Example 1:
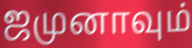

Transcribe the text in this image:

ஜமுனாவும்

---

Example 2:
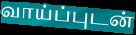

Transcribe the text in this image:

வாய்ப்புடன்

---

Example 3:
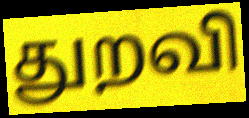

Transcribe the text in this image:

துறவி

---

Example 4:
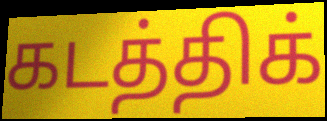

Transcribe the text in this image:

கடத்திக்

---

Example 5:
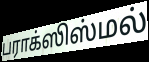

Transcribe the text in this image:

பராக்ஸிஸ்மல்